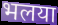
भलया